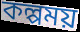
কল্পময়